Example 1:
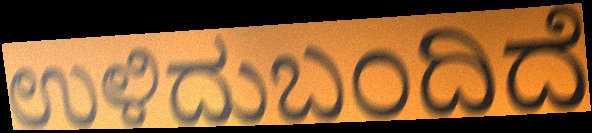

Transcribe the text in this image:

ಉಳಿದುಬಂದಿದೆ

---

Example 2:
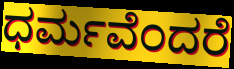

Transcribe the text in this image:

ಧರ್ಮವೆಂದರೆ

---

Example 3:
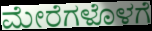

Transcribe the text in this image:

ಮೇರೆಗಳೊಳಗೆ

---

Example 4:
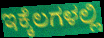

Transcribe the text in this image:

ಇಕ್ಕೆಲಗಳಲ್ಲಿ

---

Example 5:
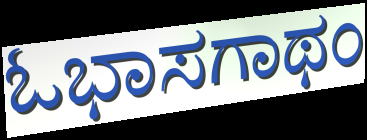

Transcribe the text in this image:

ಓಭಾಸಗಾಥಂ